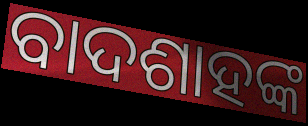
ବାଦଶାହଙ୍କ